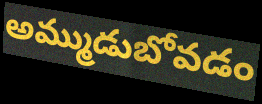
అమ్ముడుబోవడం